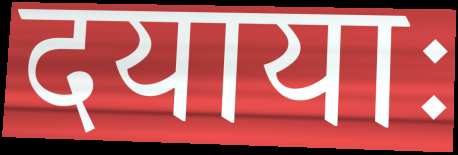
दयायाः